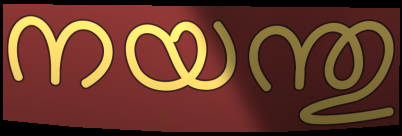
നയന്തു